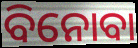
ବିନୋବା